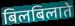
बिलबिलाते